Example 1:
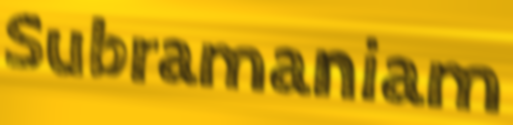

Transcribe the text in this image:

Subramaniam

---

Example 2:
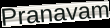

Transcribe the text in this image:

Pranavam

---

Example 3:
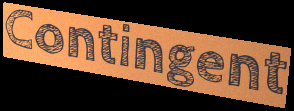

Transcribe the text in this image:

Contingent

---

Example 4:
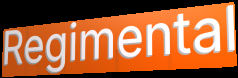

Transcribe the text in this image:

Regimental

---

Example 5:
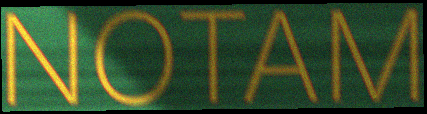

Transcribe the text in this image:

NOTAM